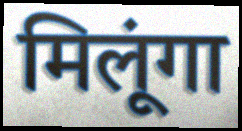
मिलूंगा